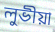
লুভীয়া